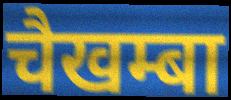
चैखम्बा